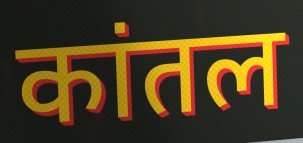
कांतल